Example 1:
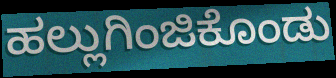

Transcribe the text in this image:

ಹಲ್ಲುಗಿಂಜಿಕೊಂಡು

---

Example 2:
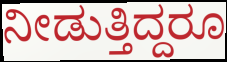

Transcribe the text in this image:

ನೀಡುತ್ತಿದ್ದರೂ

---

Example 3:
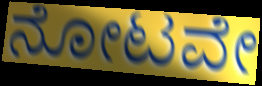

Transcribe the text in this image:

ನೋಟವೇ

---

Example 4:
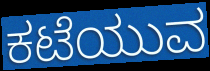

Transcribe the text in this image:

ಕಟೆಯುವ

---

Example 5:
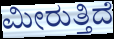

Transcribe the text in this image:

ಮೀರುತ್ತಿದೆ